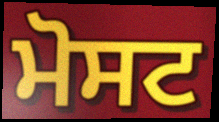
ਮੋਸਟ